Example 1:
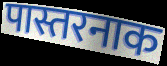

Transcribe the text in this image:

पास्तरनाक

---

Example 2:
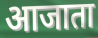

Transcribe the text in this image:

आजाता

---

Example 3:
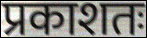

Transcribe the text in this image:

प्रकाशतः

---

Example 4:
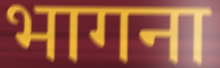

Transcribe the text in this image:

भागना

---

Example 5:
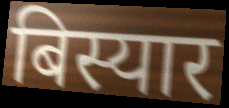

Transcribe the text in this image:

बिस्यार